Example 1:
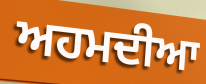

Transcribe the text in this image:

ਅਹਮਦੀਆ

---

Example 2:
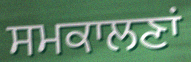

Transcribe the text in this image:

ਸਮਕਾਲਣਾਂ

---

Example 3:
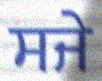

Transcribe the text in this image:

ਸਜੇ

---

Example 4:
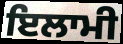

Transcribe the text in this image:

ਇਲਾਮੀ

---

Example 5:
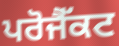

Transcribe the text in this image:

ਪਰੋਜੈੱਕਟ